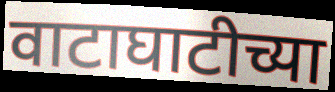
वाटाघाटीच्या